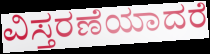
ವಿಸ್ತರಣೆಯಾದರೆ